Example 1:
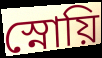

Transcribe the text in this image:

স্নোয়ি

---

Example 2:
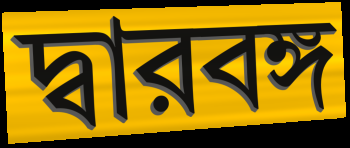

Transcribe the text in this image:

দ্বারবঙ্গ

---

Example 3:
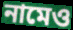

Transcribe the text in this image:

নামেও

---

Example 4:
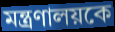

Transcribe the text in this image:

মন্ত্রণালয়কে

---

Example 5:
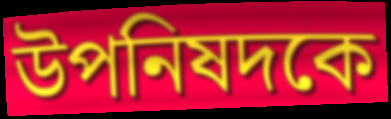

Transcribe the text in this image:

উপনিষদকে